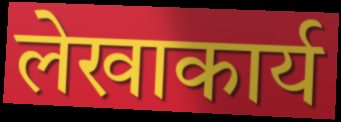
लेखाकार्य